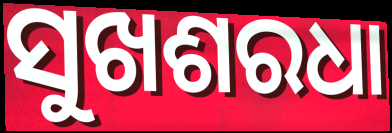
ସୁଖଶରଧା